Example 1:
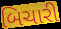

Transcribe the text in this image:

બિચારી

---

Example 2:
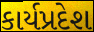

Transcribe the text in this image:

કાર્યપ્રદેશ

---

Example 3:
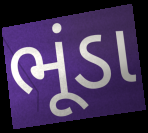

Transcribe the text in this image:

ભૂંડા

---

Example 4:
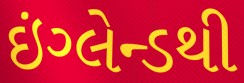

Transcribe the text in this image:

ઇંગ્લેન્ડથી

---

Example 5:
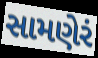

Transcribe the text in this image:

સામણેરં